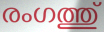
രംഗത്തു്